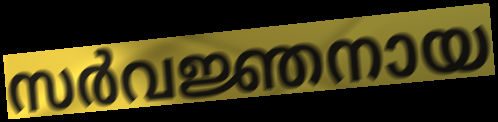
സർവജ്ഞനായ